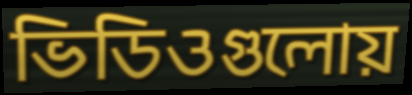
ভিডিওগুলোয়